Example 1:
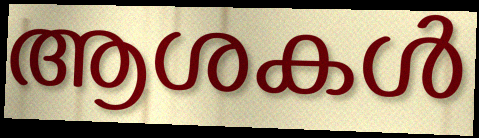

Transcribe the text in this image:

ആശകൾ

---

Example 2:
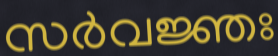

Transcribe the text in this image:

സർവജ്ഞഃ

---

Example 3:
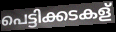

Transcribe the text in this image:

പെട്ടിക്കടകള്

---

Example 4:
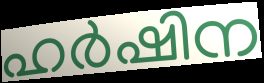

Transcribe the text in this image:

ഹർഷിന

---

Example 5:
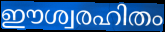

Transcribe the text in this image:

ഈശ്വരഹിതം